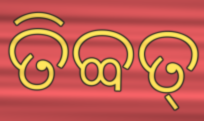
ତିବ୍ବତ୍